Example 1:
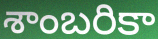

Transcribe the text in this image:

శాంబరికా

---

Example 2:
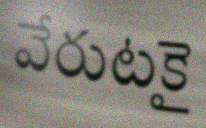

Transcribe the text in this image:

వేరుటకై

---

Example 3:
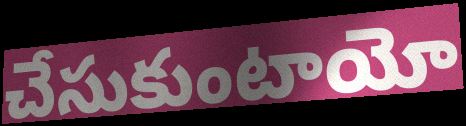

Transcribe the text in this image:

చేసుకుంటాయో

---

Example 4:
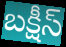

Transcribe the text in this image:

బక్షీస్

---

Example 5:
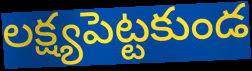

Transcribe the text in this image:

లక్ష్యపెట్టకుండ